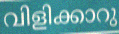
വിളിക്കാറു